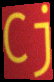
Cj